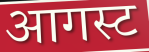
आगस्ट